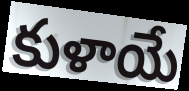
కుళాయే